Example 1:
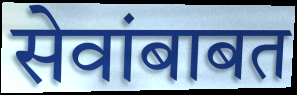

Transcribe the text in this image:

सेवांबाबत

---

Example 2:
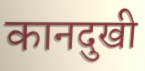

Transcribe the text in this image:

कानदुखी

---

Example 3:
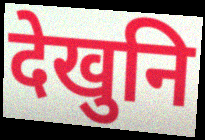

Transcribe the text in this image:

देखुनि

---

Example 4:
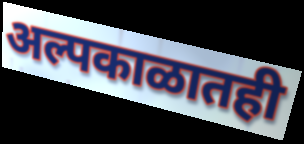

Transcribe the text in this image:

अल्पकाळातही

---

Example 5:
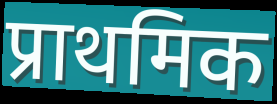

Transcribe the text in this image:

प्राथमिक